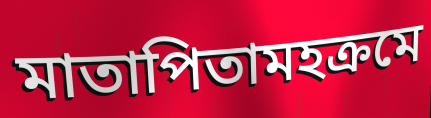
মাতাপিতামহক্রমে